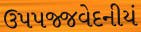
ઉપપજ્જવેદનીયં